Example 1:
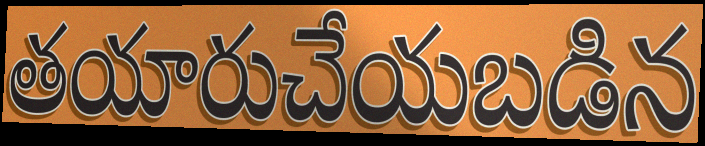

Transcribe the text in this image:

తయారుచేయబడిన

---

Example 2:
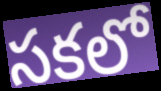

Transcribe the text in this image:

సకలో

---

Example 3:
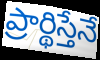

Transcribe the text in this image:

ప్రార్థిస్తేనే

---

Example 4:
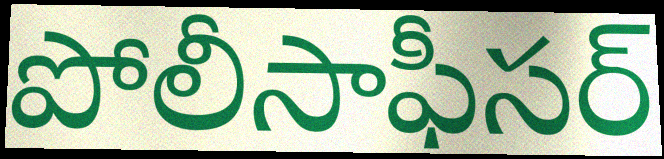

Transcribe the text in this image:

పోలీసాఫీసర్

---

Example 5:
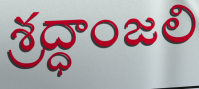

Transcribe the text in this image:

శ్రద్ధాంజలి